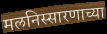
मलनिस्सारणाच्या